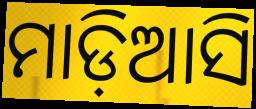
ମାଡ଼ିଆସି